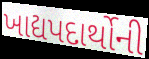
ખાદ્યપદાર્થોની